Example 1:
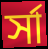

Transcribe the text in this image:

র্সা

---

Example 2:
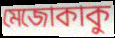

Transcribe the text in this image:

মেজোকাকু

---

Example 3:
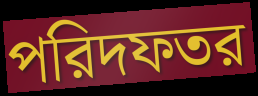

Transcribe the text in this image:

পরিদফতর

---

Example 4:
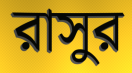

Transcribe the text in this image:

রাসুর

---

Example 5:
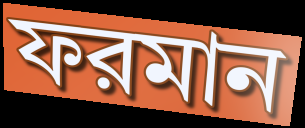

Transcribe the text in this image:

ফরমান